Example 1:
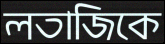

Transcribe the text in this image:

লতাজিকে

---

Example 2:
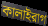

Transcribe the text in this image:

কালাইরাগ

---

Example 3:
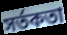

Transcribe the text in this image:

সর্তকতা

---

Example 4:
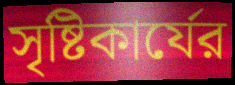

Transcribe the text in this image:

সৃষ্টিকার্যের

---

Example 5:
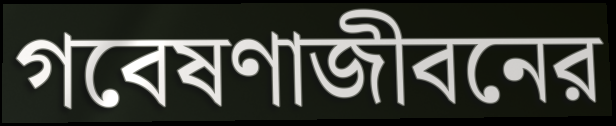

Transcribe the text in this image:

গবেষণাজীবনের